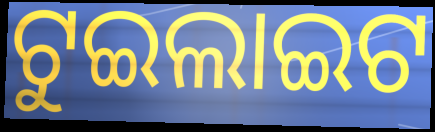
ଟୁଇଲାଇଟ